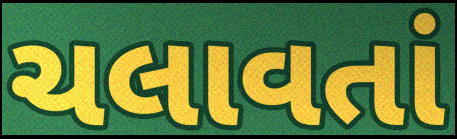
ચલાવતાં